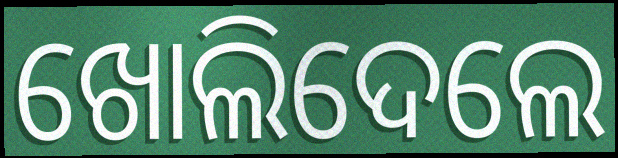
ଖୋଲିଦେଲେ